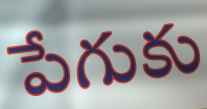
పేగుకు